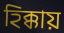
হিক্কায়